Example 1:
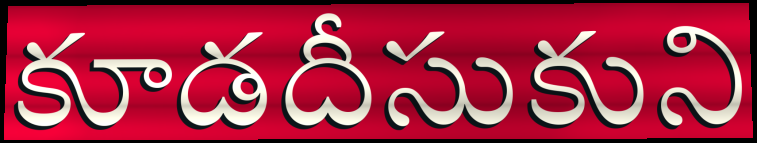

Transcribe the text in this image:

కూడదీసుకుని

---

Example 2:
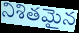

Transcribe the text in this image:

నిశితమైన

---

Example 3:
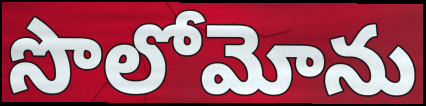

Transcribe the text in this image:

సొలోమోను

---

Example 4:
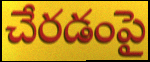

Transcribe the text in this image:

చేరడంపై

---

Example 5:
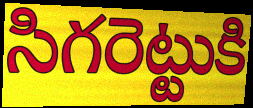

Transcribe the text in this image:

సిగరెట్టుకి